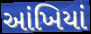
આંખિયાં